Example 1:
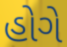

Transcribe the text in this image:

હોગે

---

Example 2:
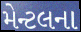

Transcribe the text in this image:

મેન્ટલના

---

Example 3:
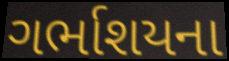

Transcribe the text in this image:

ગર્ભાશયના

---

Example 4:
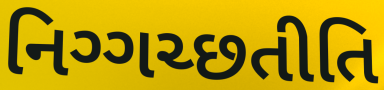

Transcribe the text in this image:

નિગ્ગચ્છતીતિ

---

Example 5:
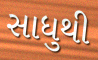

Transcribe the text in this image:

સાધુથી